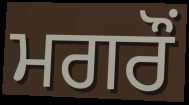
ਮਗਰੌਂ